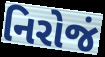
નિરોજં